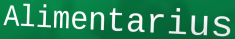
Alimentarius